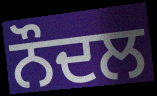
ਨੌਦਲ